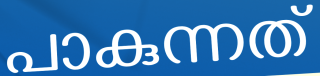
പാകുന്നത്